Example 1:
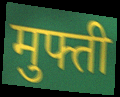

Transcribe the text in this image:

मुफ्ती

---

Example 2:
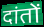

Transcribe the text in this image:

दांतों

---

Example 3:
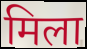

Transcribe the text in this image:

मिला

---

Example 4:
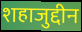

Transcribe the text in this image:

शहाजुद्दीन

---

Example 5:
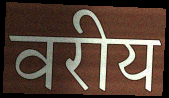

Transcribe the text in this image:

वरीय